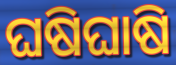
ଘଷିଘାଷି